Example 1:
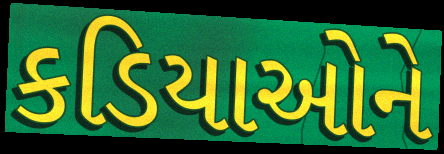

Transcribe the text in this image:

કડિયાઓને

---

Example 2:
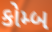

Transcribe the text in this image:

કોમ્બ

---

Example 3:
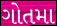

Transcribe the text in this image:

ગોતમા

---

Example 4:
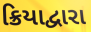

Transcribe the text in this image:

ક્રિયાદ્વારા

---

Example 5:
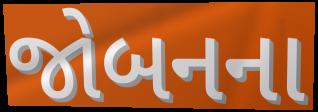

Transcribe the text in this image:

જોબનના